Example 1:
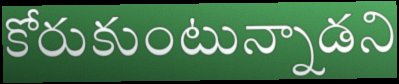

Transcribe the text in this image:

కోరుకుంటున్నాడని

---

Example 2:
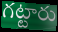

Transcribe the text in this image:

గట్టారు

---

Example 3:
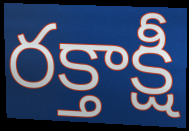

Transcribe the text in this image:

రక్తాక్షీ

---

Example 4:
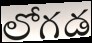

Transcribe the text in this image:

లోగడ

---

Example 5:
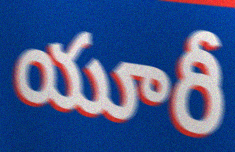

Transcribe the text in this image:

యూరీ